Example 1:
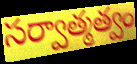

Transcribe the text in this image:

సర్వాత్మత్వం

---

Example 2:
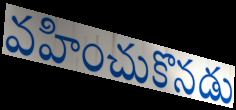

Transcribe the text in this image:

వహించుకొనడు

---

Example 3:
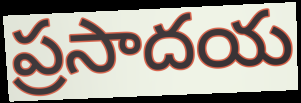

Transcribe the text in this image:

ప్రసాదయ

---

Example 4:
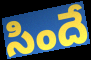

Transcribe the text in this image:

సిందే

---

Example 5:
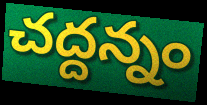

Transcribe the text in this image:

చద్దన్నం